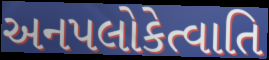
અનપલોકેત્વાતિ